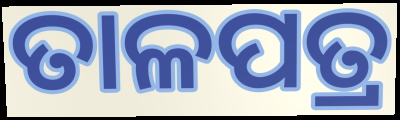
ତାଳପତ୍ର